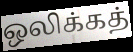
ஒலிக்கத்